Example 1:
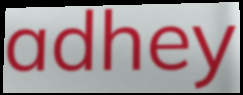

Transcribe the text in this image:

adhey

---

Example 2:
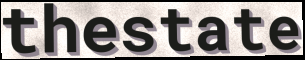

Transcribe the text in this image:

thestate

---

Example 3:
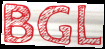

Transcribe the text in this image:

BGL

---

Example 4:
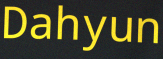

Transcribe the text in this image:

Dahyun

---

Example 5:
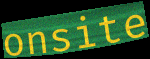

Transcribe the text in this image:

onsite